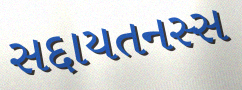
સદ્દાયતનસ્સ